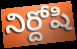
నిర్దోషి